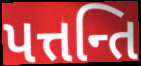
પત્તન્તિ